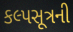
કલ્પસૂત્રની